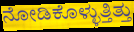
ನೋಡಿಕೊಳ್ಳುತ್ತಿತ್ತು